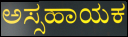
ಅಸ್ಸಹಾಯಕ